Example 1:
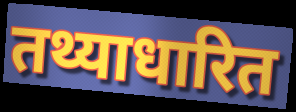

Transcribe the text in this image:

तथ्याधारित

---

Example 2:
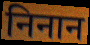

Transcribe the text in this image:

निनान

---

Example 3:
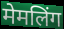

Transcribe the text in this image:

मेमलिंग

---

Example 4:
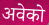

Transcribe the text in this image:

अवेको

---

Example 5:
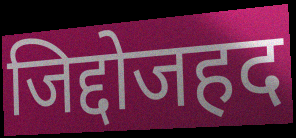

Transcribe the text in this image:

जिद्दोजहद